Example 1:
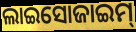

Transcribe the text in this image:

ଲାଇସୋଜାଇମ୍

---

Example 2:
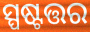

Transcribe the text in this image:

ସ୍ପଷ୍ଟତ୍ତର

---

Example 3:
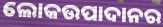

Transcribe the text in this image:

ଲୋକଉପାଦାନର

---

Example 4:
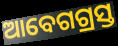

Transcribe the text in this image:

ଆବେଗଗ୍ରସ୍ତ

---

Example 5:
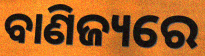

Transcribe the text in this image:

ବାଣିଜ୍ୟରେ